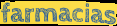
farmacias